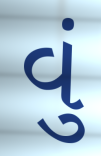
વું